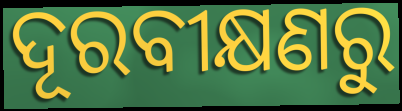
ଦୂରବୀକ୍ଷଣରୁ